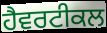
ਹੈਵਰਟੀਕਲ